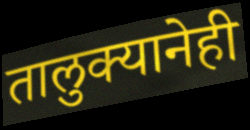
तालुक्यानेही